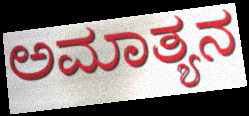
ಅಮಾತ್ಯನ